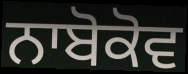
ਨਾਬੋਕੋਵ